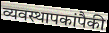
व्यवस्थापकांपैकी